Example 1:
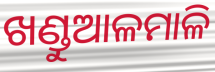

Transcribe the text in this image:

ଖଣ୍ଡୁଆଳମାଳି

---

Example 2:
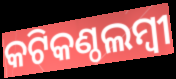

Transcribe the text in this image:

କଟିକଣ୍ଠଲମ୍ବୀ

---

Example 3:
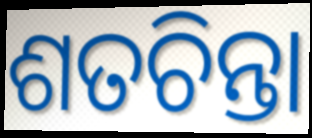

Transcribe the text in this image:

ଶତଚିନ୍ତା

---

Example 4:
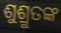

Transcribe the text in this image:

ଶୁଶ୍ରୁତଙ୍କ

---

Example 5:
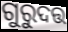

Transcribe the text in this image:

ଗୁରୁଦତ୍ତ